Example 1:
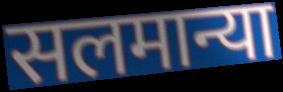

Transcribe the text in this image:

सलमान्या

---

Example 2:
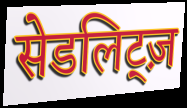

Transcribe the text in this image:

सेडलिट्ज़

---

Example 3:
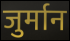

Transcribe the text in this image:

जुर्मान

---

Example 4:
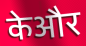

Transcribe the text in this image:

केऔर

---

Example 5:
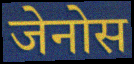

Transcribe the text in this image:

जेनोस